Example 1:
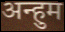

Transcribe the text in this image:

अन्हुम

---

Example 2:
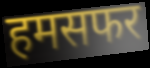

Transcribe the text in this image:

हमसफर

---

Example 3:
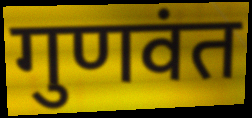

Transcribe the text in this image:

गुणवंत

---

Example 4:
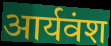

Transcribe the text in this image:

आर्यवंश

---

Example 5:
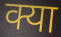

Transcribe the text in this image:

क्या